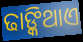
ଢାଙ୍କିଥାଏ